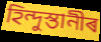
হিন্দুস্তানীৰ